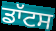
ਡਾੱਟਸ